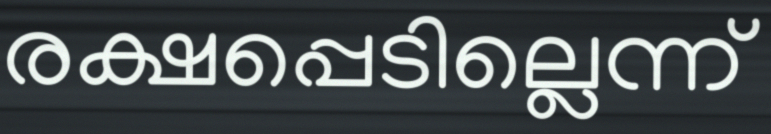
രക്ഷപ്പെടില്ലെന്ന്